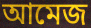
আমেজ